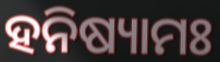
ହନିଷ୍ୟାମଃ